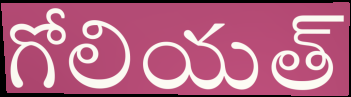
గోలియత్